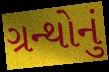
ગ્રન્થોનું